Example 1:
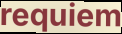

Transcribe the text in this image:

requiem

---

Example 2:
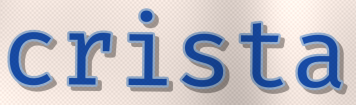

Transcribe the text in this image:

crista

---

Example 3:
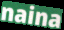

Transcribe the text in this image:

naina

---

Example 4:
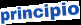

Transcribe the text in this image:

principio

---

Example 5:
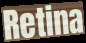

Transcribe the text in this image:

Retina